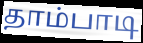
தாம்பாடி